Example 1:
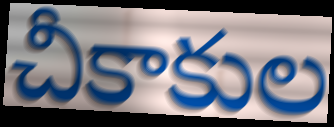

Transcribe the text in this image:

చీకాకుల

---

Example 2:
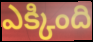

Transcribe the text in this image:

ఎక్కింది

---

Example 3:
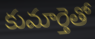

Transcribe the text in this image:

కుమార్తెతో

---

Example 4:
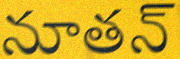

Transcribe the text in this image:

నూతన్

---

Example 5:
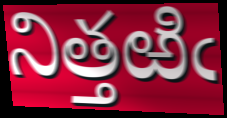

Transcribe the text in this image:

నిత్తఱిఁ